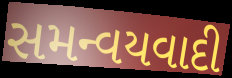
સમન્વયવાદી